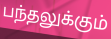
பந்தலுக்கும்